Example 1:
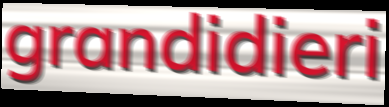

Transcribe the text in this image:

grandidieri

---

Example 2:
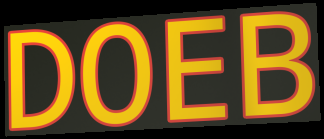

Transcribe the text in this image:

DOEB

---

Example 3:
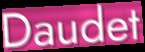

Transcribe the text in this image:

Daudet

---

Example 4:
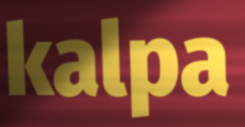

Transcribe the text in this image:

kalpa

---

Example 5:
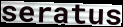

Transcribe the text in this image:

seratus